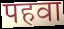
पहवा